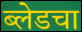
ब्लेडचा